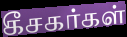
கீசகர்கள்